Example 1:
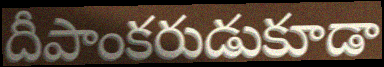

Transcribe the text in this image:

దీపాంకరుడుకూడా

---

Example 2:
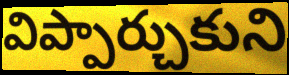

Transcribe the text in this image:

విప్పార్చుకుని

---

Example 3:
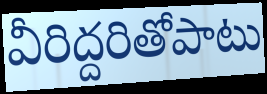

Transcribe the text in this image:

వీరిద్దరితోపాటు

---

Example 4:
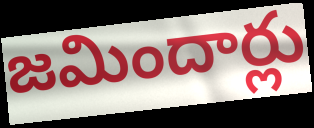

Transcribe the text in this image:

జమిందార్లు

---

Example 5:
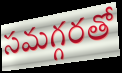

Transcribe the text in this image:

సమగ్గరతో